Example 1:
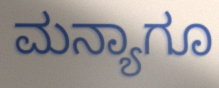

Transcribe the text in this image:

ಮನ್ಯಾಗೂ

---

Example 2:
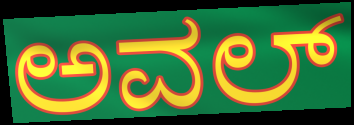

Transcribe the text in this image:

ಅವಲ್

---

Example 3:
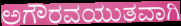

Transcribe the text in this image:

ಅಗೌರವಯುತವಾಗಿ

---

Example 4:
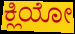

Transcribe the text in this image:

ಕ್ಲಿಯೋ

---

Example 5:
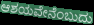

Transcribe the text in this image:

ಆಶಯವೇನೆಂಬುದು